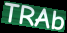
TRAb